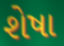
શેષા